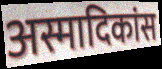
अस्मादिकांस